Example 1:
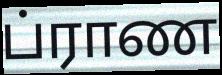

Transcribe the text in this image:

ப்ராண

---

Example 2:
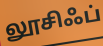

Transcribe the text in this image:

லூசிஃப்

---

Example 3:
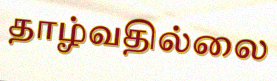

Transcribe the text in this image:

தாழ்வதில்லை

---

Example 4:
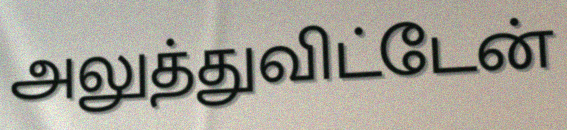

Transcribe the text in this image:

அலுத்துவிட்டேன்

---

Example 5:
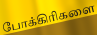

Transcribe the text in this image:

போக்கிரிகளை